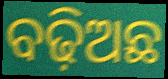
ବଢ଼ିଅଛ